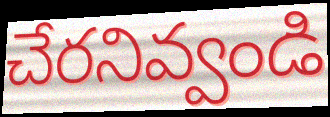
చేరనివ్వండి